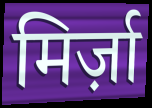
मिर्ज़ा